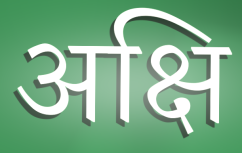
अक्षि